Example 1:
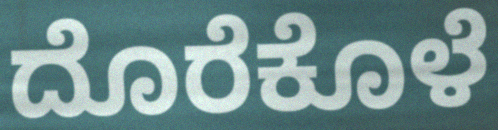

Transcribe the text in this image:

ದೊರೆಕೊಳೆ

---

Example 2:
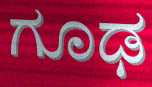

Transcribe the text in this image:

ಗೂಢ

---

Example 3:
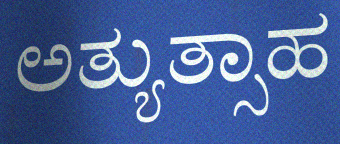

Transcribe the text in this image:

ಅತ್ಯುತ್ಸಾಹ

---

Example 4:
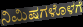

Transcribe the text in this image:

ನಿಮಿಷಗಳೊಳಗೆ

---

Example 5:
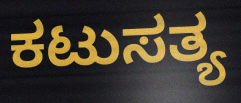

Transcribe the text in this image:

ಕಟುಸತ್ಯ